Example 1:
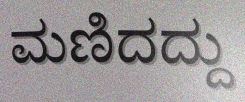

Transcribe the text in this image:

ಮಣಿದದ್ದು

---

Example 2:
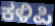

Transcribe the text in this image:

ಕಳಿಪಿ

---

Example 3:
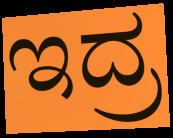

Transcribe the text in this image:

ಇದ್ರ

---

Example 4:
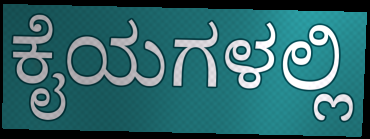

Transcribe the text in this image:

ಕೈಯಗಳಲ್ಲಿ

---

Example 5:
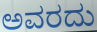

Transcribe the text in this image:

ಅವರದು